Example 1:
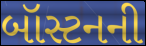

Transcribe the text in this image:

બૉસ્ટનની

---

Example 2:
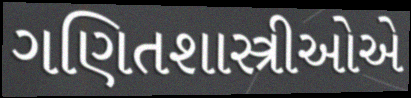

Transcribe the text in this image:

ગણિતશાસ્ત્રીઓએ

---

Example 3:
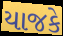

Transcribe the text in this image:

યાજકે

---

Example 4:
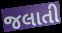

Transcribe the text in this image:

જલાતી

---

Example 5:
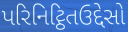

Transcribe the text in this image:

પરિનિટ્ઠિતઉદ્દેસો